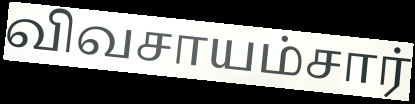
விவசாயம்சார்